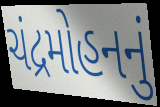
ચંદ્રમોહનનું